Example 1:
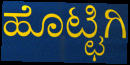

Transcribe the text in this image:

ಹೊಟ್ಟಿಗಿ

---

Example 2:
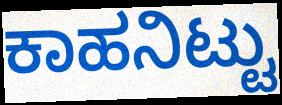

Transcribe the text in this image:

ಕಾಹನಿಟ್ಟು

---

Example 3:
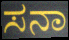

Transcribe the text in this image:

ಸನಾ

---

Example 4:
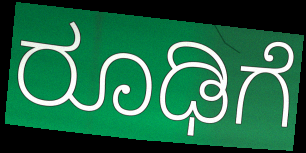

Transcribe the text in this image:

ರೂಢಿಗೆ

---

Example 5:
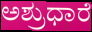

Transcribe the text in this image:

ಅಶ್ರುಧಾರೆ